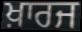
ਖ਼ਾਰਜ